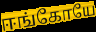
ஈங்கோயே